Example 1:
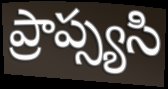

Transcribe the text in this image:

ప్రాప్స్యసి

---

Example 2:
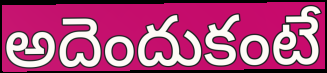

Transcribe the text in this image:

అదెందుకంటే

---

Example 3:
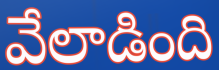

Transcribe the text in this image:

వేలాడింది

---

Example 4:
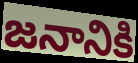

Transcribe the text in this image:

జనానికి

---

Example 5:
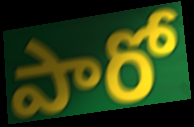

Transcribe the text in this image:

పారో